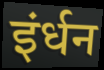
इंर्धन